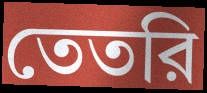
তেতরি